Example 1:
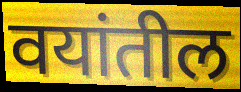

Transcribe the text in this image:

वयांतील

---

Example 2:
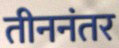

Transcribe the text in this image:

तीननंतर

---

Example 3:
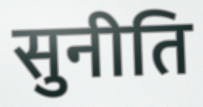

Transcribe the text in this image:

सुनीति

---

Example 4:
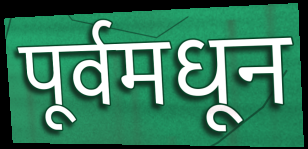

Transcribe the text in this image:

पूर्वमधून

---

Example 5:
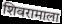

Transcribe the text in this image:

शिवरामाला